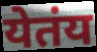
येतंय